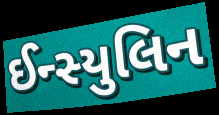
ઈન્સ્યુલિન